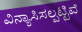
ವಿನ್ಯಾಸಿಸಲ್ಪಟ್ಟಿವೆ